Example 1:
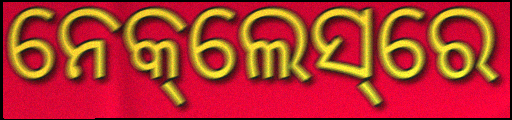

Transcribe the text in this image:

ନେକ୍‌ଲେସ୍‌ରେ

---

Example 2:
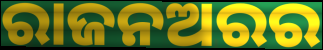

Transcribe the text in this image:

ରାଜନଅରର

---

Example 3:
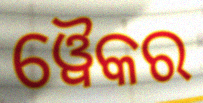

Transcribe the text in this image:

ୱୈକର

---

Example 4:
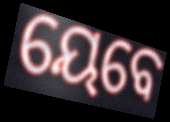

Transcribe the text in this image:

ୟେବେ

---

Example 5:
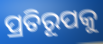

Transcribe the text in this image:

ପ୍ରତିରୂପକୁ